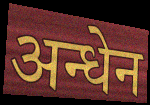
अन्धेन